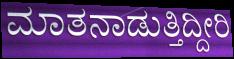
ಮಾತನಾಡುತ್ತಿದ್ದೀರಿ